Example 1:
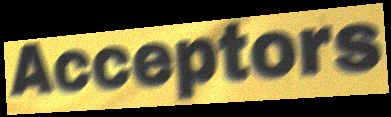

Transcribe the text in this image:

Acceptors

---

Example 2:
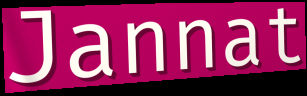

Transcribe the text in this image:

Jannat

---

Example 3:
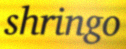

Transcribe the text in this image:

shringo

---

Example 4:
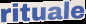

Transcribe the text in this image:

rituale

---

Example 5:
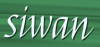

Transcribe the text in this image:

siwan